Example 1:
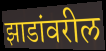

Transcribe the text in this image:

झाडांवरील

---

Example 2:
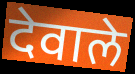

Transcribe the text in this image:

देवाले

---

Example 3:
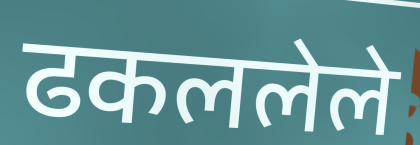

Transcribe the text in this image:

ढकललेले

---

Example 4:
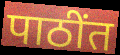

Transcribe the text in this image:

पाठींत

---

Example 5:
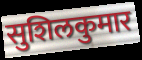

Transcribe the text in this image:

सुशिलकुमार